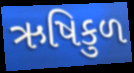
ઋષિકુળ